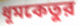
ধূমকেতুর